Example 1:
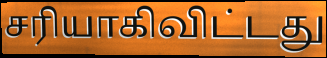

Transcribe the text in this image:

சரியாகிவிட்டது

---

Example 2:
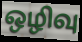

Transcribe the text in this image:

ஒழிவு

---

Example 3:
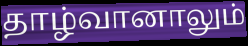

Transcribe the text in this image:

தாழ்வானாலும்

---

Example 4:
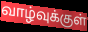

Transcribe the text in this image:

வாழ்வுக்குள்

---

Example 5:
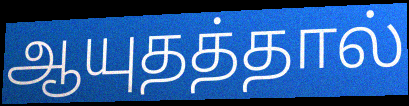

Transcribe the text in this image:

ஆயுதத்தால்